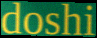
doshi